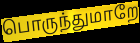
பொருந்துமாறே